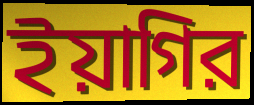
ইয়াগির